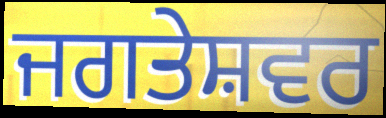
ਜਗਤੇਸ਼ਵਰ